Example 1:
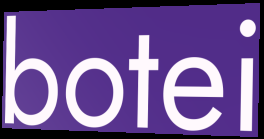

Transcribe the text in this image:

botei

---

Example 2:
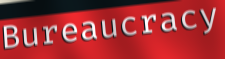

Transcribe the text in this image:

Bureaucracy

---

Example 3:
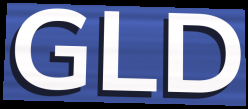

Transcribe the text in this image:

GLD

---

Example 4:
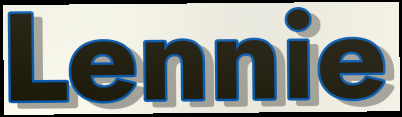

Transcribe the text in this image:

Lennie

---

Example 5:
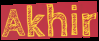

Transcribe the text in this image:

Akhir